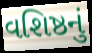
વશિષ્ઠનું